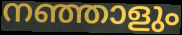
നഞ്ഞാളും